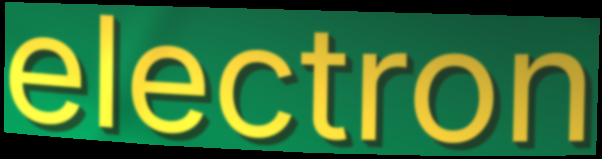
electron